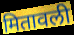
मितावली